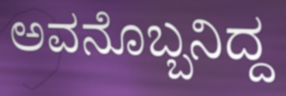
ಅವನೊಬ್ಬನಿದ್ದ